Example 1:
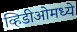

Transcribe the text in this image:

व्हिडीओमध्ये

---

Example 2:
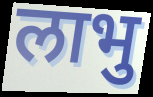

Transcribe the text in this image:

लाभु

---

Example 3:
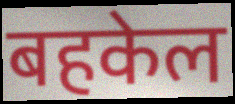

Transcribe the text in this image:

बहकेल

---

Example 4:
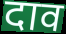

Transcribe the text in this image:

दाव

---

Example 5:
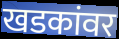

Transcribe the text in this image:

खडकांवर